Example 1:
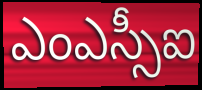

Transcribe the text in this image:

ఎంఎస్సీఐ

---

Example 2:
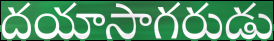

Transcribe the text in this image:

దయాసాగరుడు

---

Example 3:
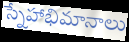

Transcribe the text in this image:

స్నేహాభిమానాలు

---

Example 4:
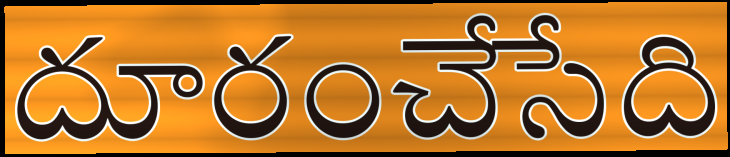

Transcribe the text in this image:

దూరంచేసేది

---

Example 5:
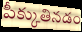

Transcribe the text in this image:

పీక్కుతినడం